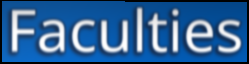
Faculties